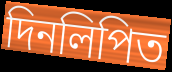
দিনলিপিত